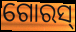
ଗୋରସ୍